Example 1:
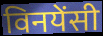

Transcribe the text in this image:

विनयेंसी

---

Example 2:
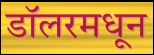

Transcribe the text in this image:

डॉलरमधून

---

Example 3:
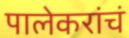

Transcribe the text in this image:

पालेकरांचं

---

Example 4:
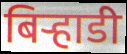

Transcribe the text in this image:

बिर्‍हाडी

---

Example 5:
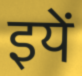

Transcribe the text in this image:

इयें